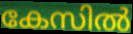
കേസിൽ